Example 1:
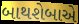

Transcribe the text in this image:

બાથશેબાએ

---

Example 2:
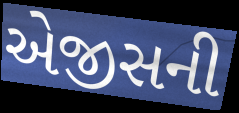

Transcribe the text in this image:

એજીસની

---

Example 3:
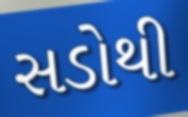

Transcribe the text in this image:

સડોથી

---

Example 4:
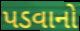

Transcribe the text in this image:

પડવાનો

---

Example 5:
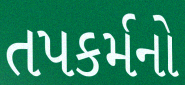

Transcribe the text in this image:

તપકર્મનો